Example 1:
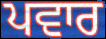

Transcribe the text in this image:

ਪਵਾਰ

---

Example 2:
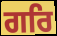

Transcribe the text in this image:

ਗਰਿ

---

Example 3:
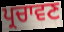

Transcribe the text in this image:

ਪ੍ਰਚਾਵਣ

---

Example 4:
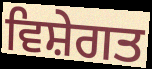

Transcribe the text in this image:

ਵਿਸ਼ੇਗਤ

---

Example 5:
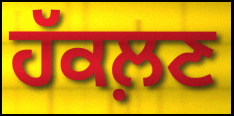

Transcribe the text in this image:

ਹੱਕਲ਼ਣ